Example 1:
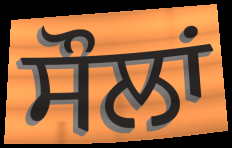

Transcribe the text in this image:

ਸੌਲਾਂ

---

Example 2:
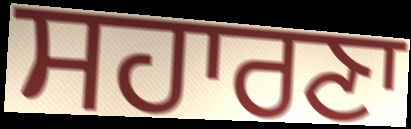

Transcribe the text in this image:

ਸਹਾਰਣਾ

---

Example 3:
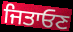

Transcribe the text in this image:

ਜਿਤਾਓਣ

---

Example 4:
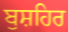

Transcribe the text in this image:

ਬੁਸ਼ਹਿਰ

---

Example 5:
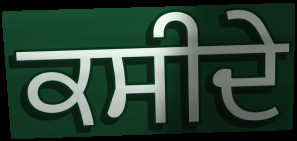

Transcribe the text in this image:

ਕਸੀਦੇ